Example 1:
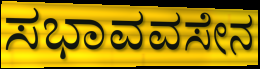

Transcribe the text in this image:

ಸಭಾವವಸೇನ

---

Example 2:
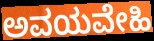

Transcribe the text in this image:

ಅವಯವೇಹಿ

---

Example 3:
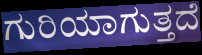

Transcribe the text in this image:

ಗುರಿಯಾಗುತ್ತದೆ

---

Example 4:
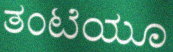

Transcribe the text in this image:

ತಂಟೆಯೂ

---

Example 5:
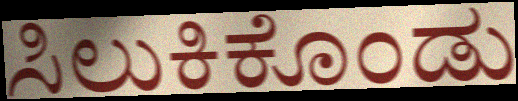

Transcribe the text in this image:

ಸಿಲುಕಿಕೊಂಡು